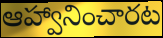
ఆహ్వానించారట